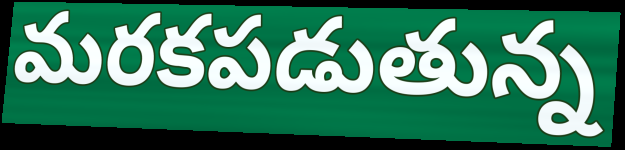
మరకపడుతున్న